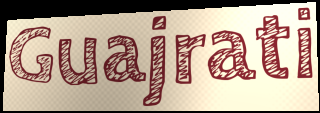
Guajrati